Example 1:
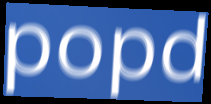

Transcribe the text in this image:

popd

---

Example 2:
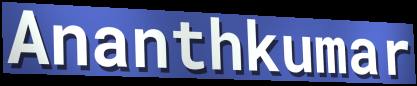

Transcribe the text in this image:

Ananthkumar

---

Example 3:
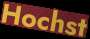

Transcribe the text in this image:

Hochst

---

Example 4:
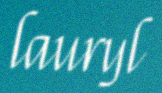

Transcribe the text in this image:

lauryl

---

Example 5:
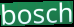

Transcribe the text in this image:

bosch